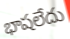
భాషలేదు